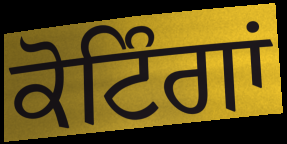
ਕੋਟਿੰਗਾਂ